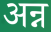
अन्न